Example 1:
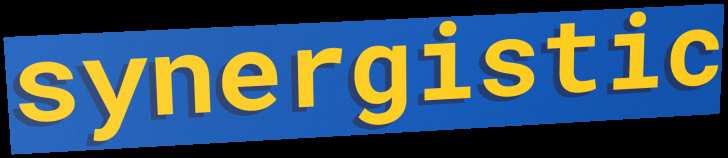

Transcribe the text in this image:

synergistic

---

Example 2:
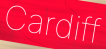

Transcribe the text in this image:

Cardiff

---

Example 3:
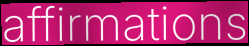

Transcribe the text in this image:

affirmations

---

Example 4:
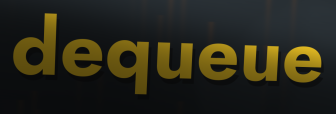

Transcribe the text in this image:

dequeue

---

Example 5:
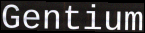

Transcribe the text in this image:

Gentium